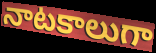
నాటకాలుగా